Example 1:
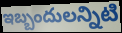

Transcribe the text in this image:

ఇబ్బందులన్నిటి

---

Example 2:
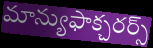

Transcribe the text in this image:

మాన్యుఫాక్చరర్స్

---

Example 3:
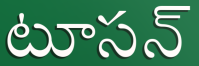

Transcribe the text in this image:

టూసన్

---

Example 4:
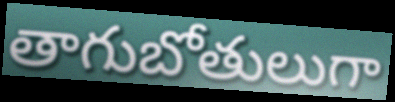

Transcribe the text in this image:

తాగుబోతులుగా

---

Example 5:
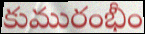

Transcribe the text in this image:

కుమురంభీం